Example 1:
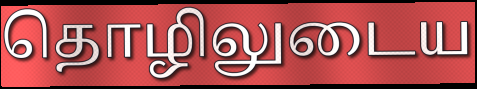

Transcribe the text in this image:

தொழிலுடைய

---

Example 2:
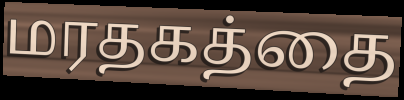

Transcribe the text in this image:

மரதகத்தை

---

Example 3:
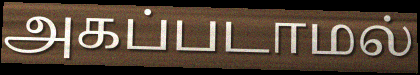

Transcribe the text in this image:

அகப்படாமல்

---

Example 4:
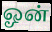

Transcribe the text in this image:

ஓன்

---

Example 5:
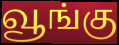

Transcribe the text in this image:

வூங்கு